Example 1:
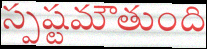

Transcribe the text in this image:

స్పష్టమౌతుంది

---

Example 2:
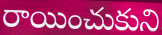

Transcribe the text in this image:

రాయించుకుని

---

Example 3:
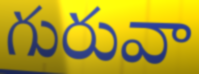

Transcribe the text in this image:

గురువా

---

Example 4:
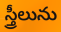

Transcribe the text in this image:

స్త్రీలును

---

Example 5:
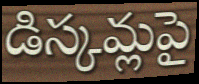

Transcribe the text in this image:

డిస్కమ్లపై